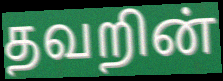
தவறின்